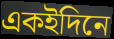
একইদিনে